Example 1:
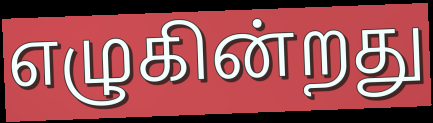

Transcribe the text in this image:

எழுகின்றது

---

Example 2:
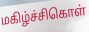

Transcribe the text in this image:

மகிழ்ச்சிகொள்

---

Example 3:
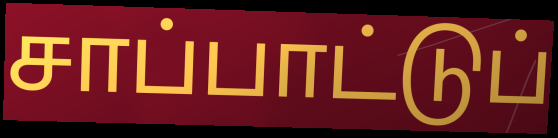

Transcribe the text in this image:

சாப்பாட்டுப்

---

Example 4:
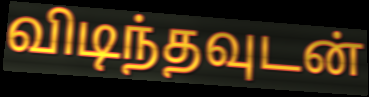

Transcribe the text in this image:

விடிந்தவுடன்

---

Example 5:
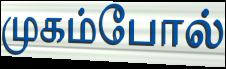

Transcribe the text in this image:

முகம்போல்